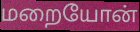
மறையோன்